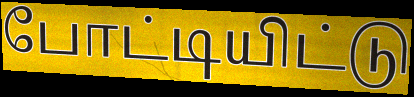
போட்டியிட்டு